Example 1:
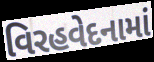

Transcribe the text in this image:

વિરહવેદનામાં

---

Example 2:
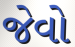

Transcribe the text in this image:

જેવો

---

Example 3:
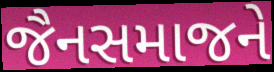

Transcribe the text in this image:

જૈનસમાજને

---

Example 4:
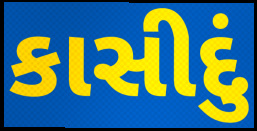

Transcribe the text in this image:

કાસીદું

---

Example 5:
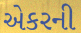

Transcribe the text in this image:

એકરની